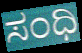
ಸಂಧಿ